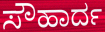
ಸೌಹಾರ್ದ